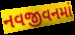
નવજીવનમાં